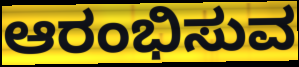
ಆರಂಭಿಸುವ